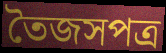
তৈজসপত্র